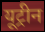
यूट्रीन